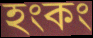
হংকং